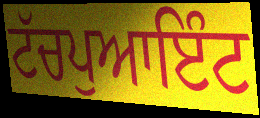
ਟੱਚਪੁਆਇੰਟ